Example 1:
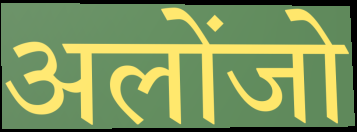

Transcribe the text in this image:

अलोंजो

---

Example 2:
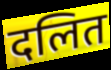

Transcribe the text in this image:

दलित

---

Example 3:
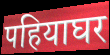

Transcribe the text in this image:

पहियाघर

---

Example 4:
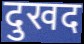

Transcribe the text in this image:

दुखद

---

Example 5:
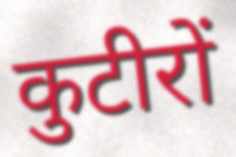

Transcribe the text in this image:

कुटीरों